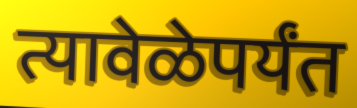
त्यावेळेपर्यंत